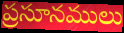
ప్రసూనములు